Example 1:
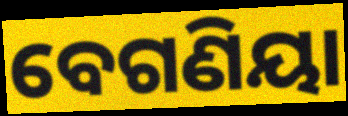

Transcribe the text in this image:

ବେଗଣିୟା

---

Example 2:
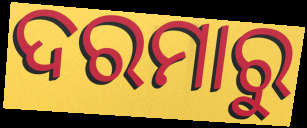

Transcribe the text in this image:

ଦରମାରୁ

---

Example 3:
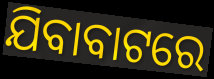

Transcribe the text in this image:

ଯିବାବାଟରେ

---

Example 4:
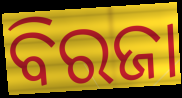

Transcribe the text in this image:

ବିରଜା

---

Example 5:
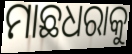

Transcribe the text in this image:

ମାଛଧରାକୁ